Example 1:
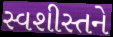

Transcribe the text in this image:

સ્વશીસ્તને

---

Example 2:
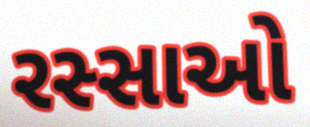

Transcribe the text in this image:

રસ્સાઓ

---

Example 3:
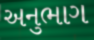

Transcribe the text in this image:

અનુભાગ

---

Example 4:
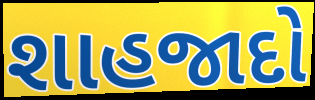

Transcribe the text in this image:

શાહજાદો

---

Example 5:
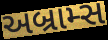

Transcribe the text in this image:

અબ્રામ્સ